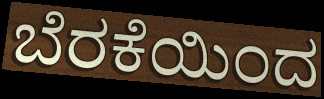
ಬೆರಕೆಯಿಂದ